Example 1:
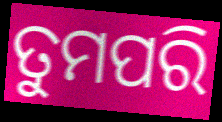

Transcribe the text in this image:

ତୁମପରି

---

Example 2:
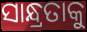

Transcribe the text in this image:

ସାନ୍ଧ୍ରତାକୁ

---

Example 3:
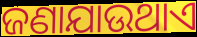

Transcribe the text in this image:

ଜଣାଯାଉଥାଏ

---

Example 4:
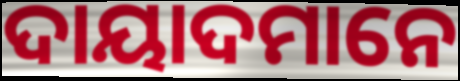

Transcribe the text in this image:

ଦାୟାଦମାନେ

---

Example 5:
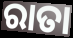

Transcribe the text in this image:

ରାତା